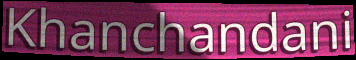
Khanchandani